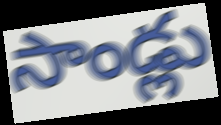
సాండ్లు